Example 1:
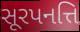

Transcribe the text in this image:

સૂરપનત્તિ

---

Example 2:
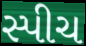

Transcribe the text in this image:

સ્પીચ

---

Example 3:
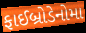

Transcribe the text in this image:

ફાઈબ્રોડેનોમા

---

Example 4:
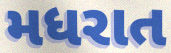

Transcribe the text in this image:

મધરાત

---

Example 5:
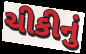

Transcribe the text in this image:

ચીકીનું